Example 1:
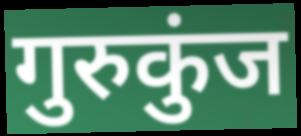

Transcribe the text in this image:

गुरुकुंज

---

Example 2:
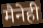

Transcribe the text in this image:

मैनेही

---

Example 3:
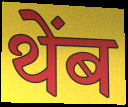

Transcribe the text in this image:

थेंब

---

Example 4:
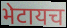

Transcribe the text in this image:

भेटायच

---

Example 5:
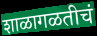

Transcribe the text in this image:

शाळागळतीचं